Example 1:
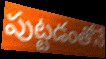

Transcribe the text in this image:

పుట్టడంతోనే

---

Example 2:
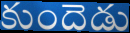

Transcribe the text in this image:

కుందెడు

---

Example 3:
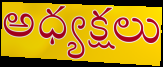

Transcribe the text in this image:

అధ్యక్షలు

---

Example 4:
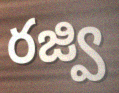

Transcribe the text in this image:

రజ్వి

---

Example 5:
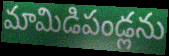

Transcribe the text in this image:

మామిడిపండ్లను